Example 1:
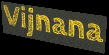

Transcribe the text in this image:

Vijnana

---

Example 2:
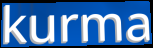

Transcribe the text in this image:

kurma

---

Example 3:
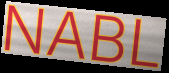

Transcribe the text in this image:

NABL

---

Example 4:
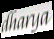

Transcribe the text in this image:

dharya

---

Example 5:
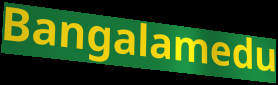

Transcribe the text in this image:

Bangalamedu